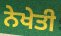
ਨੇਖੇਤੀ